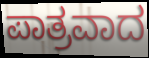
ಪಾತ್ರವಾದ